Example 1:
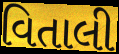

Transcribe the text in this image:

વિતાલી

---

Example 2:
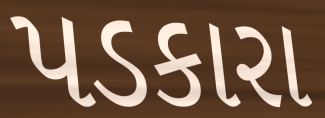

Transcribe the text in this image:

પડકારા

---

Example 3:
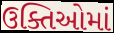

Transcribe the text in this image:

ઉક્તિઓમાં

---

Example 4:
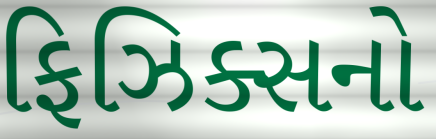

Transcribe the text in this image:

ફિઝિક્સનો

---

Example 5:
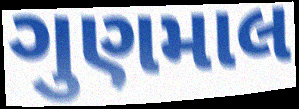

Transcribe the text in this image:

ગુણમાલ